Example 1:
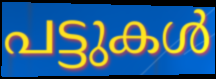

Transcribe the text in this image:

പട്ടുകൾ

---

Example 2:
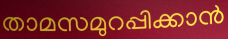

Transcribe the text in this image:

താമസമുറപ്പിക്കാൻ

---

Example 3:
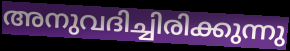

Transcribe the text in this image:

അനുവദിച്ചിരിക്കുന്നു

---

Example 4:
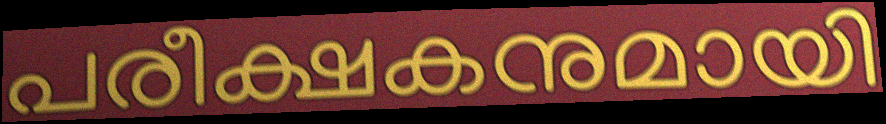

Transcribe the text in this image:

പരീക്ഷകനുമായി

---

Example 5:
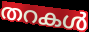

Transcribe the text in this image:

തറകൾ